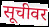
सूचीवर